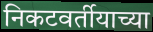
निकटवर्तीयाच्या